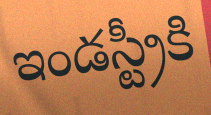
ఇండస్ట్రీకి